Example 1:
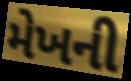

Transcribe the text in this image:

મેખની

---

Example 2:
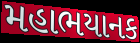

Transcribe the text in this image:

મહાભયાનક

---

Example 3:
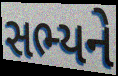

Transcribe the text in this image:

સભ્યને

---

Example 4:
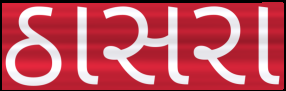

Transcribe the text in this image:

ઠાસરા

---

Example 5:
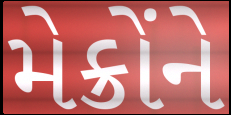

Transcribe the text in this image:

મેક્રોંને